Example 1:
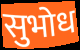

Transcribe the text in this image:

सुभोध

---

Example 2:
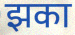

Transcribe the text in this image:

झका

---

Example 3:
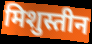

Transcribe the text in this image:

मिशुस्तीन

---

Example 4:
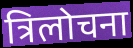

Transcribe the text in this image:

त्रिलोचना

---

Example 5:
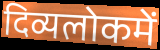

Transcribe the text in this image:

दिव्यलोकमें